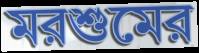
মরশুমের